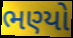
ભણ્યો